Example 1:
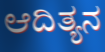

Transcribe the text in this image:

ಆದಿತ್ಯನ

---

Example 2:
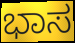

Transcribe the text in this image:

ಭಾಸ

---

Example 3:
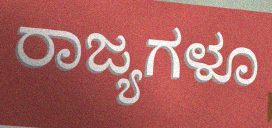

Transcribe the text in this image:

ರಾಜ್ಯಗಳೂ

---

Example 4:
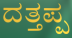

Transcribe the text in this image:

ದತ್ತಪ್ಪ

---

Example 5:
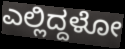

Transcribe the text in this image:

ಎಲ್ಲಿದ್ದಳೋ